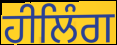
ਹੀਲਿੰਗ